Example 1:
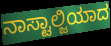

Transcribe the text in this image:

ನಾಸ್ಟಾಲ್ಜಿಯಾದ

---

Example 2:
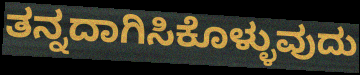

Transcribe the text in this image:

ತನ್ನದಾಗಿಸಿಕೊಳ್ಳುವುದು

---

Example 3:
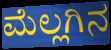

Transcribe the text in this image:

ಮೆಲ್ಲಗಿನ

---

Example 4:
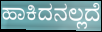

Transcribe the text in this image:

ಹಾಕಿದನಲ್ಲದೆ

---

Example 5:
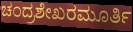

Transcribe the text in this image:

ಚಂದ್ರಶೇಖರಮೂರ್ತಿ